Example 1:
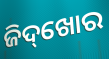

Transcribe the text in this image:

ଜିଦ୍‌ଖୋର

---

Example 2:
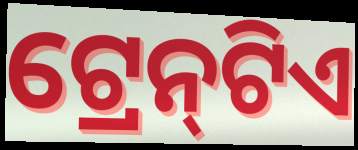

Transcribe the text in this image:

ଟ୍ରେନ୍‌ଟିଏ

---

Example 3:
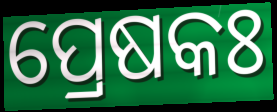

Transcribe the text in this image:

ପ୍ରେଷକଃ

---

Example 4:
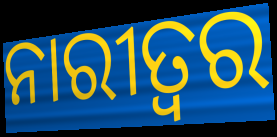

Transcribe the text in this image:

ନାରୀତ୍ଵର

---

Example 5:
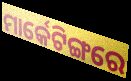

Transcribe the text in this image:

ମାର୍କେଟିଙ୍ଗରେ